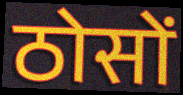
ठोसों